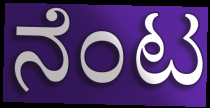
ನೆಂಟ